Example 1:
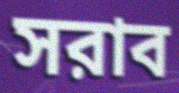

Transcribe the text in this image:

সরাব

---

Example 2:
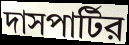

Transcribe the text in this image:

দাসপার্টির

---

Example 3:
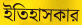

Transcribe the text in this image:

ইতিহাসকার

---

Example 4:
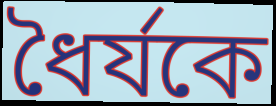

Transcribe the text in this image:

ধৈর্যকে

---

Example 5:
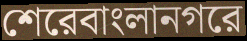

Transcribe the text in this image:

শেরেবাংলানগরে